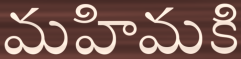
మహిమకి